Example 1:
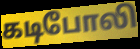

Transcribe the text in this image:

கடிபோலி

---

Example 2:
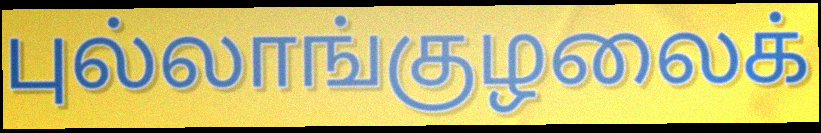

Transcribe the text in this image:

புல்லாங்குழலைக்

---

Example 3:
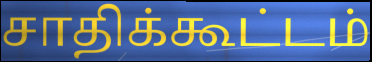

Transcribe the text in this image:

சாதிக்கூட்டம்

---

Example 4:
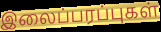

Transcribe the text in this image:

இலைப்பரப்புகள்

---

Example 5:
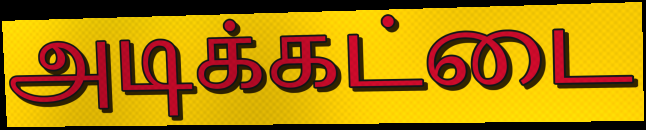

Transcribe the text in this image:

அடிக்கட்டை